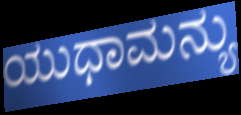
ಯುಧಾಮನ್ಯು